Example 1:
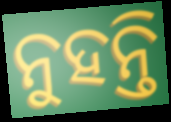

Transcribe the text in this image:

ନୁହନ୍ତି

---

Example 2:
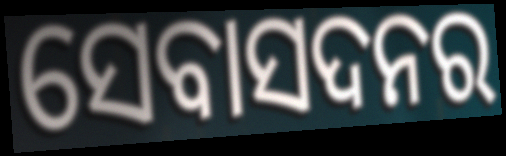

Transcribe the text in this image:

ସେବାସଦନର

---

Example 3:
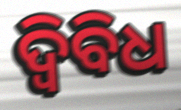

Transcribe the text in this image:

ଦ୍ଵିବିଧ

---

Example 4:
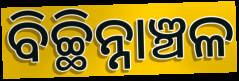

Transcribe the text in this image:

ବିଚ୍ଛିନ୍ନାଞ୍ଚଳ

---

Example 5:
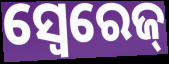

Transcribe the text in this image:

ସ୍ୱେରେଜ୍